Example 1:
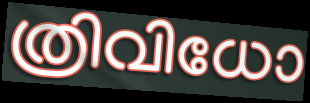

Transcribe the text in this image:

ത്രിവിധോ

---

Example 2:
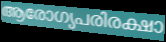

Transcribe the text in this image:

ആരോഗ്യപരിരക്ഷാ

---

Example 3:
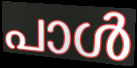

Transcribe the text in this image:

പാൾ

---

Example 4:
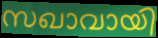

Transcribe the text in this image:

സഖാവായി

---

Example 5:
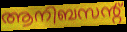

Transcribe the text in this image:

ആനിബസന്റ്